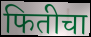
फितीचा